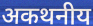
अकथनीय